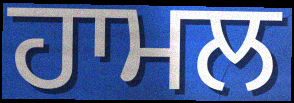
ਹਾਮਲ